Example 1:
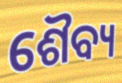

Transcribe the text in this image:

ଶୈବ୍ୟ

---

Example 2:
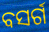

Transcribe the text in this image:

ବସର୍ଗ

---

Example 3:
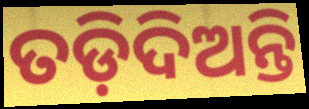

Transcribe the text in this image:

ତଡ଼ିଦିଅନ୍ତି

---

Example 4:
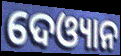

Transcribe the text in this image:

ଦେଓ୍ୟାନ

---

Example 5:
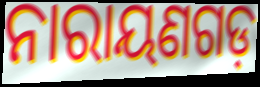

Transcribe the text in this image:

ନାରାୟଣଗଡ଼